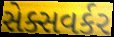
સેક્સવર્કર